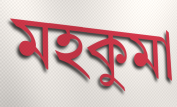
মহকুমা